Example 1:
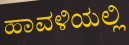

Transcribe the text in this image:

ಹಾವಳಿಯಲ್ಲಿ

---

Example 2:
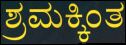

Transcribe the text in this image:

ಶ್ರಮಕ್ಕಿಂತ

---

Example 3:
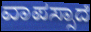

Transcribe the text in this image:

ವಾಪಸ್ಸಾದೆ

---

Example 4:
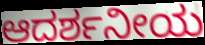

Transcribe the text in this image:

ಆದರ್ಶನೀಯ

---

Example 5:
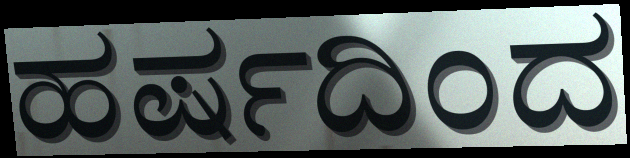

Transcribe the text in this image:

ಹರ್ಷದಿಂದ